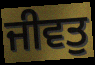
ਜੀਵਤੁ